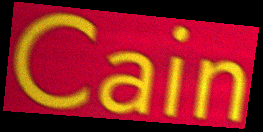
Cain